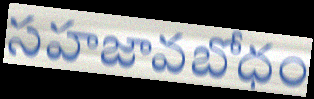
సహజావబోధం